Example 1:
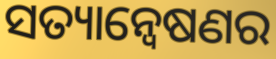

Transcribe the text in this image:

ସତ୍ୟାନ୍ୱେଷଣର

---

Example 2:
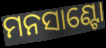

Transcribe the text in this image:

ମନସାଣ୍ଟୋ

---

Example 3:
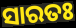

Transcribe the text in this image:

ସାରତଃ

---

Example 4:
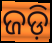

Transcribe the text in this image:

ଜଡ଼ି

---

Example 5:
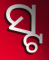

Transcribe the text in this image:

ସ୍ଟ